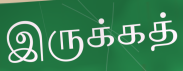
இருக்கத்